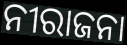
ନୀରାଜନା